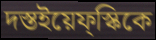
দস্তইয়েফ্স্কিকে